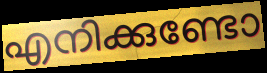
എനിക്കുണ്ടോ